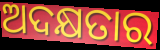
ଅଦକ୍ଷତାର